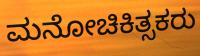
ಮನೋಚಿಕಿತ್ಸಕರು